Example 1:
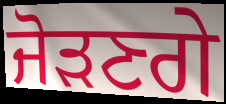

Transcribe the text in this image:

ਜੋੜਣਗੇ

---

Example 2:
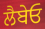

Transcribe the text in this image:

ਲੈਬੇਓ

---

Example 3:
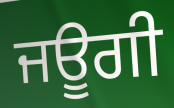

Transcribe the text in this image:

ਜਊਗੀ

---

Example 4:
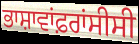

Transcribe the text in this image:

ਭਾਸ਼ਾਵਾਂਫ਼ਰਾਂਸੀਸੀ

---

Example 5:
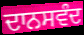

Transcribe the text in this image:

ਦਾਨਸਵੰਦ